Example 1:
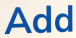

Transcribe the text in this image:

Add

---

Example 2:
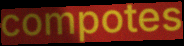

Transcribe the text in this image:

compotes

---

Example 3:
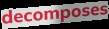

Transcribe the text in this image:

decomposes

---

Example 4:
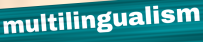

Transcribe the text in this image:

multilingualism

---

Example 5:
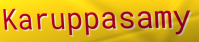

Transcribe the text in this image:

Karuppasamy